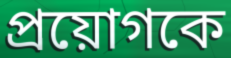
প্রয়োগকে